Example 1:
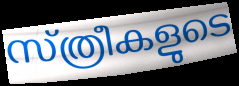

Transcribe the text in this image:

സ്‌ത്രീകളുടെ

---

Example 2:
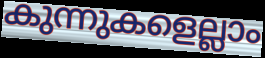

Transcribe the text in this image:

കുന്നുകളെല്ലാം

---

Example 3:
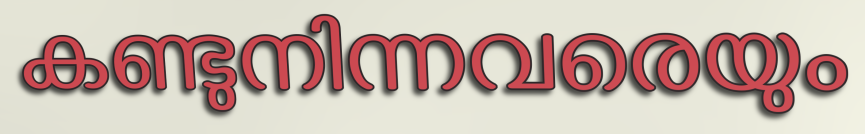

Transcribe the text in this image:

കണ്ടുനിന്നവരെയും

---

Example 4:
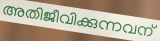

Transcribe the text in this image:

അതിജീവിക്കുന്നവന്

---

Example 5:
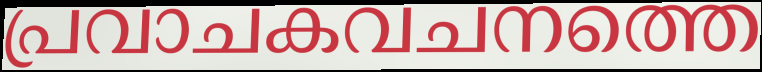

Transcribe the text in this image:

പ്രവാചകവചനത്തെ